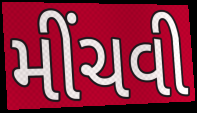
મીંચવી